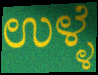
ಉಳ್ಳೆ